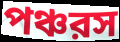
পঞ্চরস